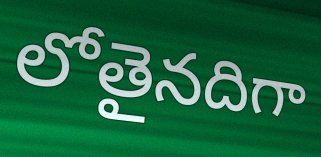
లోతైనదిగా